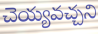
చెయ్యవచ్చని